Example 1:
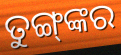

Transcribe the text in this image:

ତୁଙ୍ଗ୍‍ଙ୍କର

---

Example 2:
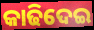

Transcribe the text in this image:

କାଢିଦେଇ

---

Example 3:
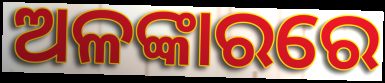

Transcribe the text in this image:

ଅଳଙ୍କାରରେ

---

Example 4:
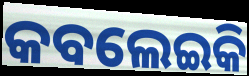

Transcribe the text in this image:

କବଲେଇକି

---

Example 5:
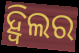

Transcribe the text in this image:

ହ୍ଵିଲର